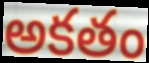
అకతం